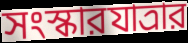
সংস্কারযাত্রার